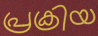
പ്രക്രിയ